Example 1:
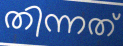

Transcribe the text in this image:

തിന്നത്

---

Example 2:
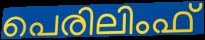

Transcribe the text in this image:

പെരിലിംഫ്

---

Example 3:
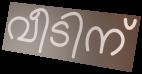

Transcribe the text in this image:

വീടിന്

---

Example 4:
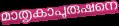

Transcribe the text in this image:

മാതൃകാപുരുഷനെ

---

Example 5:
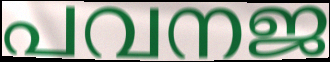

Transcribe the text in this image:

പവനജ